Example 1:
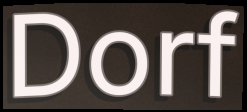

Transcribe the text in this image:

Dorf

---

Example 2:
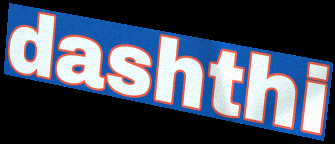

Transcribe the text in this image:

dashthi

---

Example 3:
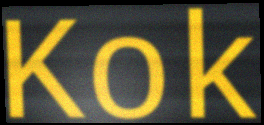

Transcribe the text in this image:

Kok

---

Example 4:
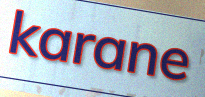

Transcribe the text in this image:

karane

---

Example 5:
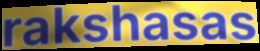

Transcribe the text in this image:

rakshasas